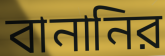
বানানির